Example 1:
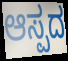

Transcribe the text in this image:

ಆಸ್ಪದ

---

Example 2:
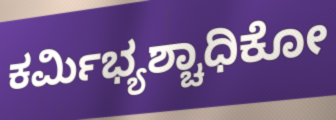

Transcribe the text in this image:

ಕರ್ಮಿಭ್ಯಶ್ಚಾಧಿಕೋ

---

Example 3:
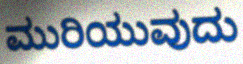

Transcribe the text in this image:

ಮುರಿಯುವುದು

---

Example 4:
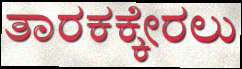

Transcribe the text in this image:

ತಾರಕಕ್ಕೇರಲು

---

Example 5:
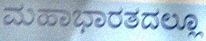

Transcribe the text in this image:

ಮಹಾಭಾರತದಲ್ಲೂ